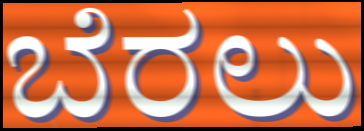
ಬೆರಲು